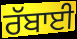
ਰੱਬਾਈ